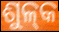
ଶୁଳ୍‌କ